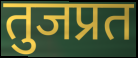
तुजप्रत